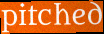
pitched